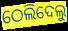
ଠେଲିଦେଲୁ